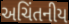
અચિંતનીય